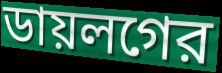
ডায়লগের